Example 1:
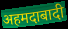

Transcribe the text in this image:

अहमदाबादी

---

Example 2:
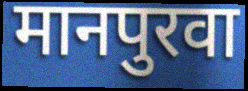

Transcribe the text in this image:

मानपुरवा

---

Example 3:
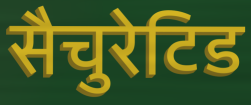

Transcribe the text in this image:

सैचुरेटिड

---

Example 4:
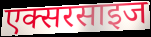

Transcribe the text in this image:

एक्सरसाइज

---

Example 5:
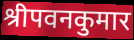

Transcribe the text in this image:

श्रीपवनकुमार